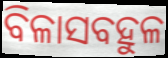
ବିଳାସବହୁଳ